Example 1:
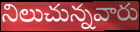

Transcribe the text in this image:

నిలుచున్నవారు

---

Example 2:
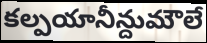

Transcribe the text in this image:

కల్పయానీన్దుమౌలే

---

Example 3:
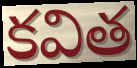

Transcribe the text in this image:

కవిత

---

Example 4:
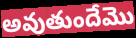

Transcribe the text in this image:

అవుతుందేమొ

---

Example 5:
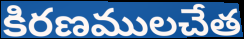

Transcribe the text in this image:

కిరణములచేత